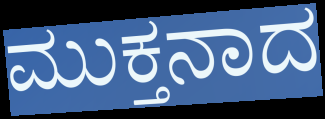
ಮುಕ್ತನಾದ